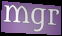
mgr